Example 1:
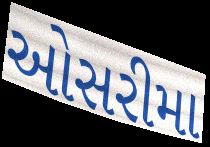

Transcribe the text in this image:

ઓસરીમા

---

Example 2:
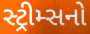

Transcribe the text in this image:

સ્ટ્રીમ્સનો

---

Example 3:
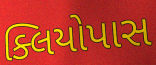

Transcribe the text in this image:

ક્લિયોપાસ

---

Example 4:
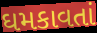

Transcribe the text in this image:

ઘમકાવતાં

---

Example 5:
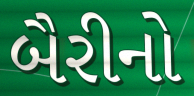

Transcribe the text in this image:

બૈરીનો